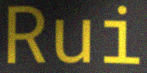
Rui